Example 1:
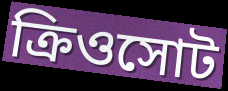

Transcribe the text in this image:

ক্রিওসোট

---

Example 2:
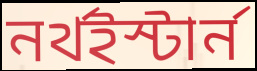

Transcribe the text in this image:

নর্থইস্টার্ন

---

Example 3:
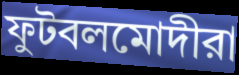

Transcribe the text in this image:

ফুটবলমোদীরা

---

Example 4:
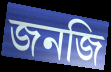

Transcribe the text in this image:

জনজি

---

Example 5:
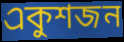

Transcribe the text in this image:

একুশজন